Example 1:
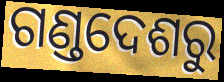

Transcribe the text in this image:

ଗଣ୍ଡଦେଶରୁ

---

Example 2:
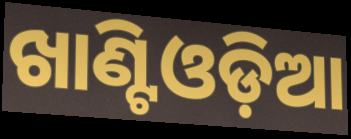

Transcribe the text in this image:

ଖାଣ୍ଟିଓଡ଼ିଆ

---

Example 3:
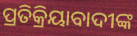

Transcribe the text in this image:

ପ୍ରତିକ୍ରିୟାବାଦୀଙ୍କ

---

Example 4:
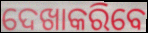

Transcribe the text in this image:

ଦେଖାକରିବେ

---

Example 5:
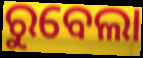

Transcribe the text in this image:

ରୁବେଲା